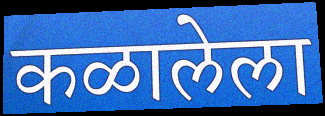
कळालेला